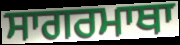
ਸਾਗਰਮਾਥਾ